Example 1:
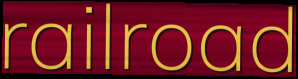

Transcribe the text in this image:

railroad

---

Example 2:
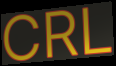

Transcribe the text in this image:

CRL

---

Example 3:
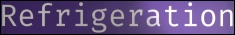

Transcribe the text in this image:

Refrigeration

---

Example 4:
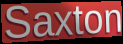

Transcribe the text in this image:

Saxton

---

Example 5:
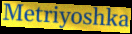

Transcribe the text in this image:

Metriyoshka